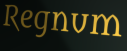
Regnum